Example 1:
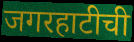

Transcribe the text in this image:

जगरहाटीची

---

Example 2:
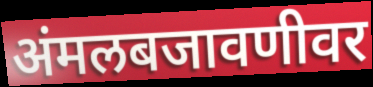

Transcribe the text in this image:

अंमलबजावणीवर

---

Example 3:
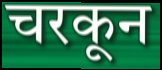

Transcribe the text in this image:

चरकून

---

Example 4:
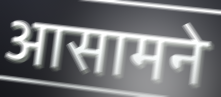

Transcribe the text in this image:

आसामने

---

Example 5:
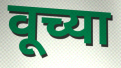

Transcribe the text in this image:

वूच्या